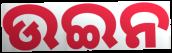
ଉଇନ